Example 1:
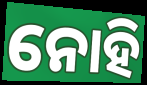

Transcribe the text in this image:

ନୋହି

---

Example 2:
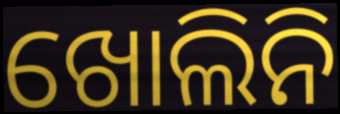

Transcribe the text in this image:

ଖୋଲିନି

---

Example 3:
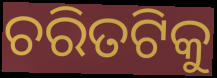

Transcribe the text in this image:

ଚରିତଟିକୁ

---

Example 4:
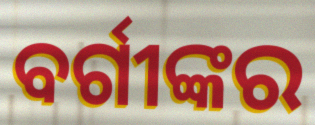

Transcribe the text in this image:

ବର୍ଗୀଙ୍କର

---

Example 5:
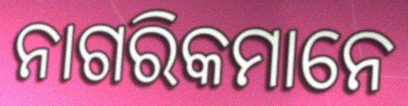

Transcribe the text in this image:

ନାଗରିକମାନେ